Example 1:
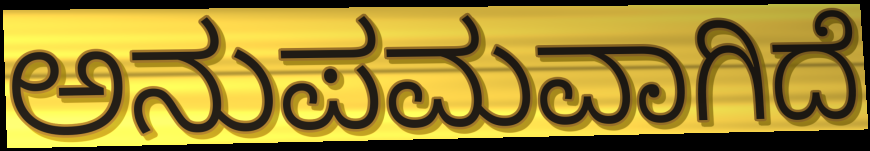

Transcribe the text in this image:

ಅನುಪಮವಾಗಿದೆ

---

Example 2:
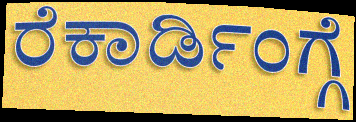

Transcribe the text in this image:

ರೆಕಾರ್ಡಿಂಗ್ಗೆ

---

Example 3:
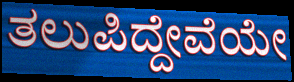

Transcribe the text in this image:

ತಲುಪಿದ್ದೇವೆಯೇ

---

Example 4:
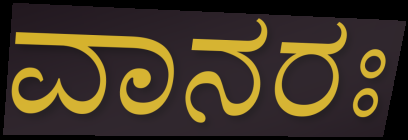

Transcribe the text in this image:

ವಾನರಃ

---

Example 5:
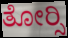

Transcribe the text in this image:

ತೋರ್‍ಸಿ